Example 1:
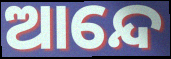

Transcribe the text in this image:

ଆନ୍ଦେ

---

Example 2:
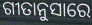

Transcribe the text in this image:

ଗୀତାନୁସାରେ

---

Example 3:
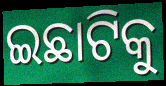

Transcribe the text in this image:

ଇଛାଟିକୁ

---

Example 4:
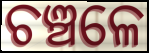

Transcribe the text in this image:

ଚଞ୍ଚଳେ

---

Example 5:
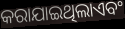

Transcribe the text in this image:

କରାଯାଇଥିଲାଏବଂ